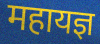
महायज्ञ